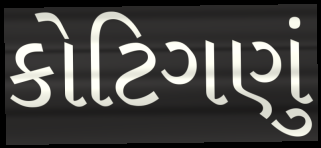
કોટિગણું